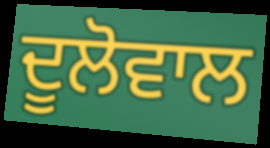
ਦੂਲੋਵਾਲ